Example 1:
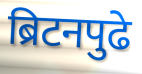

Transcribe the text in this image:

ब्रिटनपुढे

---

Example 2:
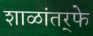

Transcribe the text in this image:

शाळांतर्फे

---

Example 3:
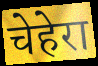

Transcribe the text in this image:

चेहेरा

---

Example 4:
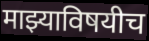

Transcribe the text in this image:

माझ्याविषयीच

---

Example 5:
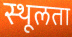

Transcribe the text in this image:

स्थूलता